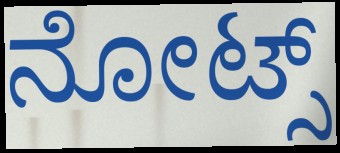
ನೋಟ್ಸ್